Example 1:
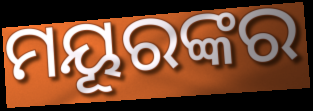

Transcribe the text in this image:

ମୟୂରଙ୍କର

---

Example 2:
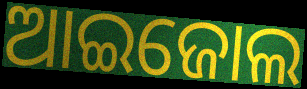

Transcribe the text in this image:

ଆଇଜୋଲ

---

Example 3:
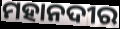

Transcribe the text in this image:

ମହାନଦୀର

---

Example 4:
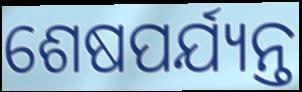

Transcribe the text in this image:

ଶେଷପର୍ଯ୍ୟନ୍ତ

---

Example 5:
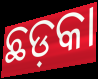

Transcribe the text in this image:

ଛଡ଼କା